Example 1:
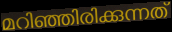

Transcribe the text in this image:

മറിഞ്ഞിരിക്കുന്നത്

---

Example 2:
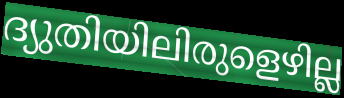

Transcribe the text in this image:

ദ്യുതിയിലിരുളെഴില്ല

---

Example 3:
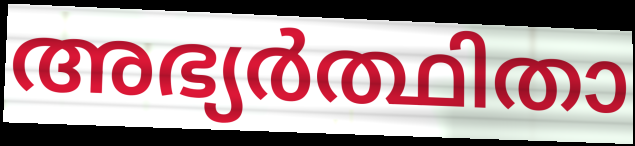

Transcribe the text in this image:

അഭ്യർത്ഥിതാ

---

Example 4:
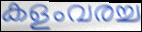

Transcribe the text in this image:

കളംവരച്ച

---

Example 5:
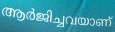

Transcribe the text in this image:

ആർജിച്ചവയാണ്